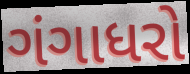
ગંગાધરો